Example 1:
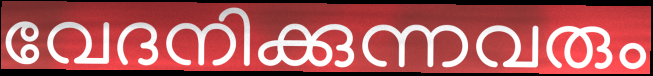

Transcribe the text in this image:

വേദനിക്കുന്നവരും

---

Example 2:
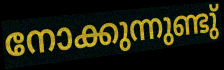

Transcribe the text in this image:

നോക്കുന്നുണ്ടു്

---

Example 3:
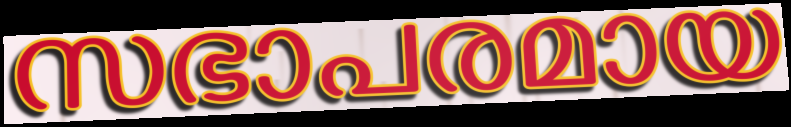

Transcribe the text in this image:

സഭാപരമായ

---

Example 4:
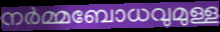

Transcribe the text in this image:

നർമ്മബോധവുമുള്ള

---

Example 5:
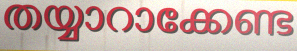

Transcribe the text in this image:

തയ്യാറാക്കേണ്ട